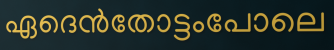
ഏദെൻതോട്ടംപോലെ